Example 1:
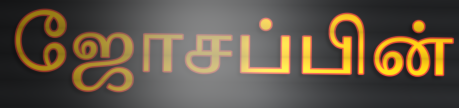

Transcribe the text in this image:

ஜோசப்பின்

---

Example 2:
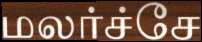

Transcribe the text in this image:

மலர்ச்சே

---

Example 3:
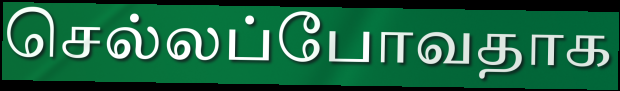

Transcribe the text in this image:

செல்லப்போவதாக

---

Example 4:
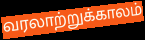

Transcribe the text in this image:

வரலாற்றுக்காலம்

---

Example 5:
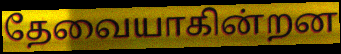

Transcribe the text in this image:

தேவையாகின்றன